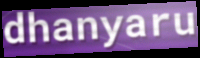
dhanyaru